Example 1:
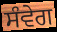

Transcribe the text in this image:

ਸੰਵੇਗ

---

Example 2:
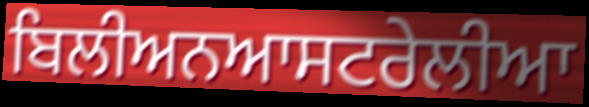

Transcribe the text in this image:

ਬਿਲੀਅਨਆਸਟਰੇਲੀਆ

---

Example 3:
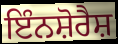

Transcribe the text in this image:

ਇੰਨਸ਼ੋਰੈਸ਼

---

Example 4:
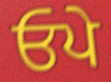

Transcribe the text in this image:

ਓਪੇ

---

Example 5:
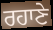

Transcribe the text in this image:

ਰਹਾਣੇ